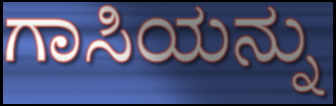
ಗಾಸಿಯನ್ನು